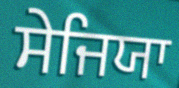
ਸੇਜਿਯਾ